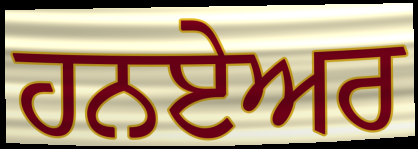
ਹਨਏਅਰ